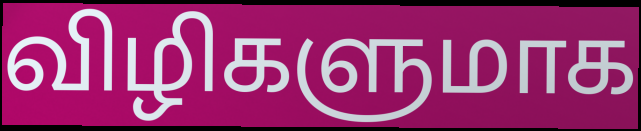
விழிகளுமாக